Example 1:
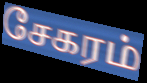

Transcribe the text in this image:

சேகரம்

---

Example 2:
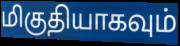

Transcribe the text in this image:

மிகுதியாகவும்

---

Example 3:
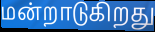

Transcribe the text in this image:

மன்றாடுகிறது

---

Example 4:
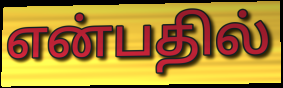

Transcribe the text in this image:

என்பதில்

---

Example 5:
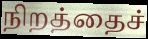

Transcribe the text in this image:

நிறத்தைச்